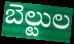
బెల్టుల